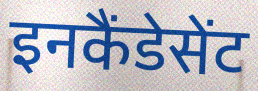
इनकैंडेसेंट